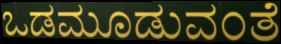
ಒಡಮೂಡುವಂತೆ